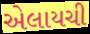
એલાયચી